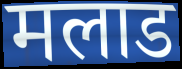
मलाड